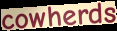
cowherds